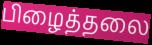
பிழைத்தலை